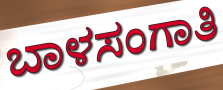
ಬಾಳಸಂಗಾತಿ